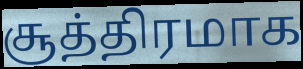
சூத்திரமாக